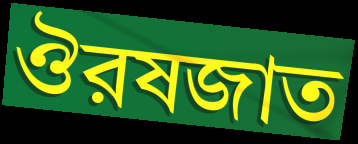
ঔরষজাত